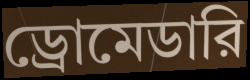
ড্রোমেডারি